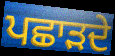
ਪਛਾੜਦੇ